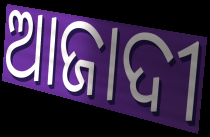
ଆଜାଦୀ